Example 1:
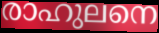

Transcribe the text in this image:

രാഹുലനെ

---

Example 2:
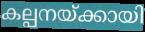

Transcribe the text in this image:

കല്പനയ്ക്കായി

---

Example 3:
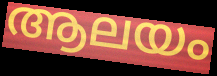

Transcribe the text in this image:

ആലയം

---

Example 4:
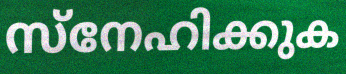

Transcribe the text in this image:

സ്നേഹിക്കുക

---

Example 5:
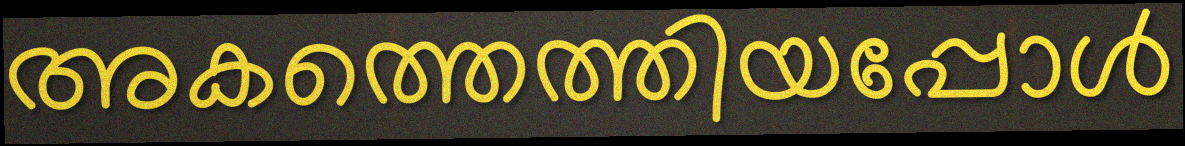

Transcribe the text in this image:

അകത്തെത്തിയപ്പോൾ